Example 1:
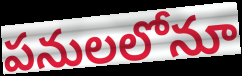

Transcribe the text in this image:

పనులలోనూ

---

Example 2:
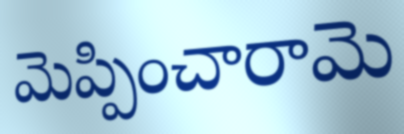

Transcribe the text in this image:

మెప్పించారామె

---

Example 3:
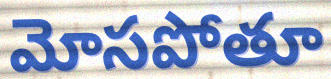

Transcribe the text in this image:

మోసపోతూ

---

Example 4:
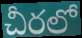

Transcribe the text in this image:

చీరలో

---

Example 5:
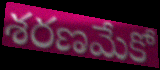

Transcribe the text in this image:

శరణమేకో